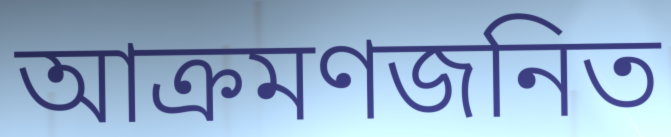
আক্রমণজনিত